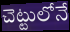
చెట్టులోనే